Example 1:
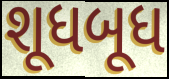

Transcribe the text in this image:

શૂધબૂધ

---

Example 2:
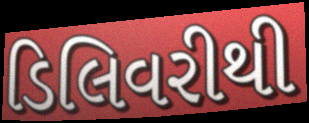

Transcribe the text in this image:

ડિલિવરીથી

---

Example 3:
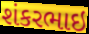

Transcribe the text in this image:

શંકરભાઇ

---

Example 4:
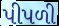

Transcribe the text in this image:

પીપળી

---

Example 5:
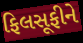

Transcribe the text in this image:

ફિલસૂફીને